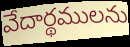
వేదార్థములను